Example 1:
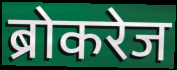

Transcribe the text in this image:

ब्रोकरेज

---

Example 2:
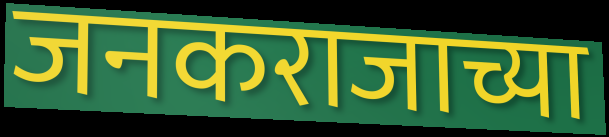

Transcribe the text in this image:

जनकराजाच्या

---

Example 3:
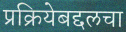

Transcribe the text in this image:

प्रक्रियेबद्दलचा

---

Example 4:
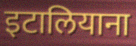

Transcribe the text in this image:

इटालियाना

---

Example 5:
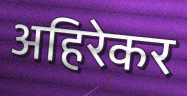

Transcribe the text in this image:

अहिरेकर